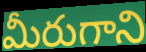
మీరుగాని